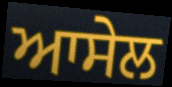
ਆਸੇਲ